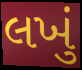
લખું